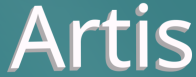
Artis